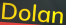
Dolan